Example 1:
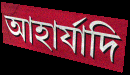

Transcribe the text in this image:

আহার্যাদি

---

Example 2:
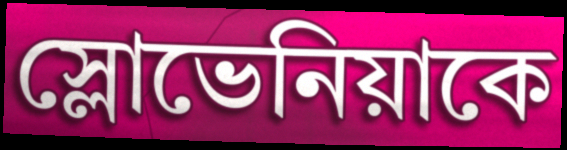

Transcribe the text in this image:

স্লোভেনিয়াকে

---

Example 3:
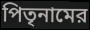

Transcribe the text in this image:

পিতৃনামের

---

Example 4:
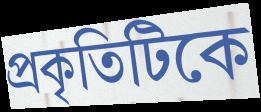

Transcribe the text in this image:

প্রকৃতিটিকে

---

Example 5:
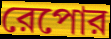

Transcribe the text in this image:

রেপোর